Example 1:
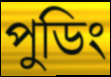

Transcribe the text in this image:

পুডিং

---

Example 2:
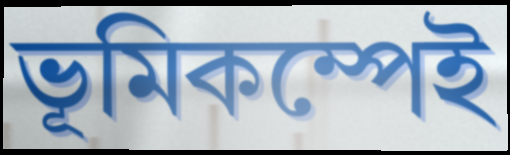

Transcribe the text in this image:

ভূমিকম্পেই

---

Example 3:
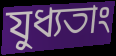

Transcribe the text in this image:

যুধ্যতাং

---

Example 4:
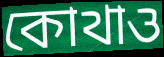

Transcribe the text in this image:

কোথাও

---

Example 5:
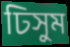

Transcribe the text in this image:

ঢিসুম